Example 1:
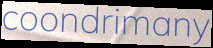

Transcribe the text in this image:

coondrimany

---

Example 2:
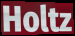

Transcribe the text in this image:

Holtz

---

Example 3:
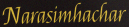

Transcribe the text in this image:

Narasimhachar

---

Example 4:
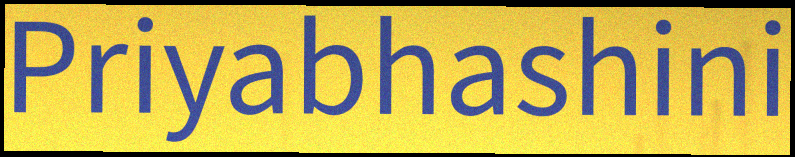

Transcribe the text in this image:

Priyabhashini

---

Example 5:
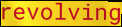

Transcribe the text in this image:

revolving